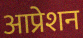
आप्रेशन